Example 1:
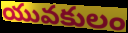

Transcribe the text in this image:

యువకులం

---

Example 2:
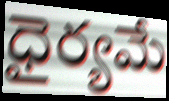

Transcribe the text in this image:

ధైర్యమే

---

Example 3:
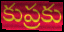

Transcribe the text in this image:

కుప్రకు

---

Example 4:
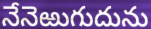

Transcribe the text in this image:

నేనెఱుగుదును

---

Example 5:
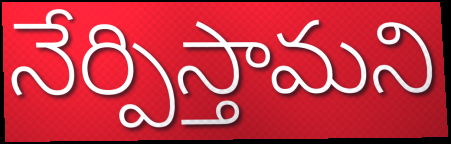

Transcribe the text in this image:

నేర్పిస్తామని